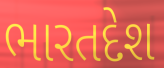
ભારતદેશ